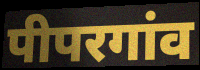
पीपरगांव